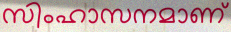
സിംഹാസനമാണ്